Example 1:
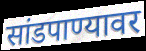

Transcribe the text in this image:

सांडपाण्यावर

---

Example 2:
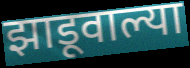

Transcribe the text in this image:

झाडूवाल्या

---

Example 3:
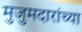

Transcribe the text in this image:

मुजुमदारांच्या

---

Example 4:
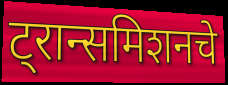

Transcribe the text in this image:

ट्रान्समिशनचे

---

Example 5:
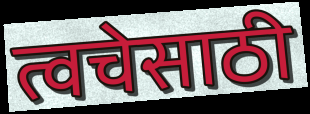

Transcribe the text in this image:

त्वचेसाठी